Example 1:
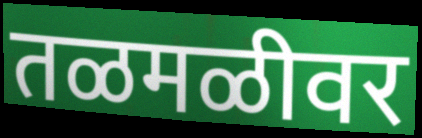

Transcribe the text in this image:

तळमळीवर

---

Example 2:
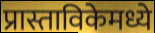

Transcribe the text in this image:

प्रास्ताविकेमध्ये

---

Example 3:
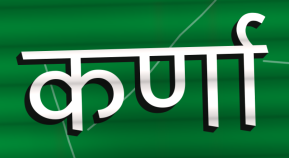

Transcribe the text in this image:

कर्णा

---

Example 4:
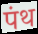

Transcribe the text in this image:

पंथ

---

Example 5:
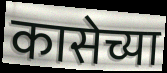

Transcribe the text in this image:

कासेच्या